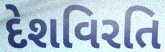
દેશવિરતિ